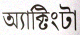
অ্যাক্টিংটা